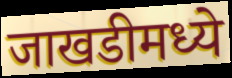
जाखडीमध्ये